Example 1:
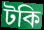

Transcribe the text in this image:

টকি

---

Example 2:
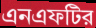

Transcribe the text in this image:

এনএফটির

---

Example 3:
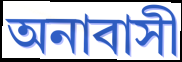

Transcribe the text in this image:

অনাবাসী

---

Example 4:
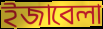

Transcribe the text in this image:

ইজাবেলা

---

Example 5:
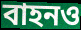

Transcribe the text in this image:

বাহনও